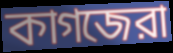
কাগজেরা